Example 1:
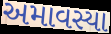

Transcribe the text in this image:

અમાવસ્યા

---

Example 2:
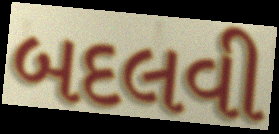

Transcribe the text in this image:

બદલવી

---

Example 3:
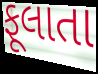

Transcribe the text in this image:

ફૂલાતા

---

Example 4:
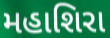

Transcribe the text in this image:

મહાશિરા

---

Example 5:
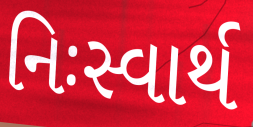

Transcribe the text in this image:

નિઃસ્વાર્થ